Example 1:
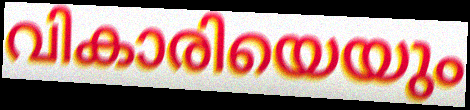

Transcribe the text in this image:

വികാരിയെയും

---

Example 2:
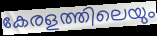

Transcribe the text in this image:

കേരളത്തിലെയും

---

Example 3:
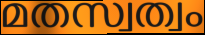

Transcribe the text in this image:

മതസ്വത്വം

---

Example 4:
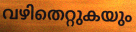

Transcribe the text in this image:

വഴിതെറ്റുകയും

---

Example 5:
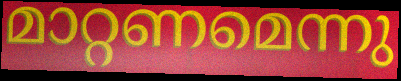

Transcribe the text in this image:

മാറ്റണമെന്നു